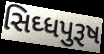
સિઘ્ધપુરૂષ